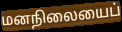
மனநிலையைப்